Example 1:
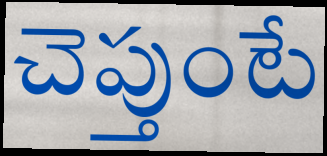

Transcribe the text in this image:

చెప్తుంటే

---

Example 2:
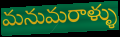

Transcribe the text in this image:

మనుమరాళ్ళు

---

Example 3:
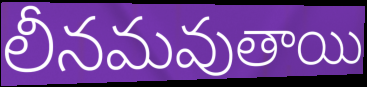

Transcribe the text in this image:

లీనమవుతాయి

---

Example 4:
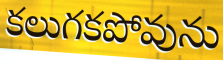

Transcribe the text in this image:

కలుగకపోవును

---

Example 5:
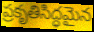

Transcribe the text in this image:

ప్రకృతిసిద్ధమైన